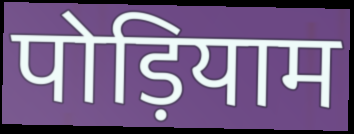
पोड़ियाम